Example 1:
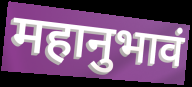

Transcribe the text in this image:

महानुभावं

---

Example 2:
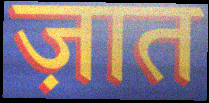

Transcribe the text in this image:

ज़ात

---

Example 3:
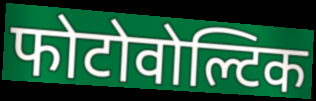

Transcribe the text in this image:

फोटोवोल्टिक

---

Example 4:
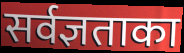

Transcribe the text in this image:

सर्वज्ञताका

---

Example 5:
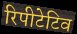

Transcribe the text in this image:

रिपीटेटिव